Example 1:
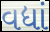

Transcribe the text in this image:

વદ્યાં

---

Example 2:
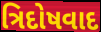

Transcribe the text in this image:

ત્રિદોષવાદ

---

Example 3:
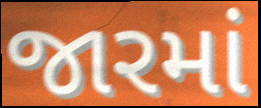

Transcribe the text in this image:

જારમાં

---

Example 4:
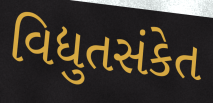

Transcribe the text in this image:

વિદ્યુતસંકેત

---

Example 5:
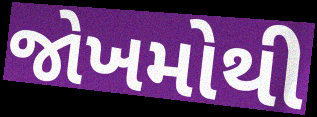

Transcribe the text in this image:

જોખમોથી